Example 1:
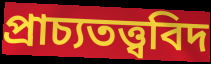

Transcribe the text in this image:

প্রাচ্যতত্ত্ববিদ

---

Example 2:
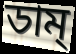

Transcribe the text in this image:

ডাম্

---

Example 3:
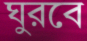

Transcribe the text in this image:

ঘুরবে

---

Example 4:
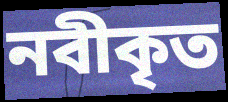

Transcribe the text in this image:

নবীকৃত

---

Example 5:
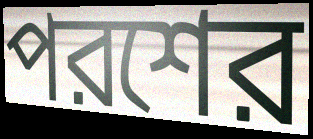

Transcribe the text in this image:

পরশের